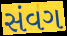
સંવગ